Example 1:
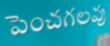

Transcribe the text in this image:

పెంచగలవు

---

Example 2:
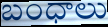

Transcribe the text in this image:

బంధాలు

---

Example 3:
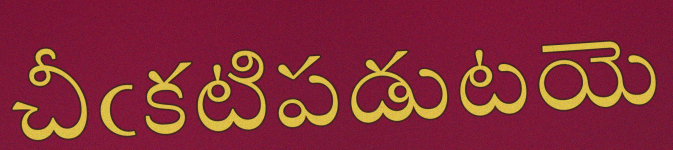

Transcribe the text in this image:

చీఁకటిపడుటయె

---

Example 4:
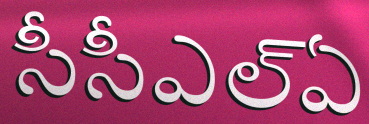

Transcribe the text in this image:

సీసీఎల్ఏ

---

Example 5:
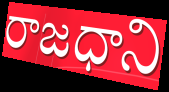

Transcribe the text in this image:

రాజధాని